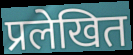
प्रलेखित